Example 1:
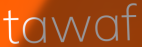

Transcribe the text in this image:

tawaf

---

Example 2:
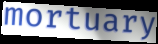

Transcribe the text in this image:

mortuary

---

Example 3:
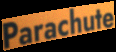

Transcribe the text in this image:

Parachute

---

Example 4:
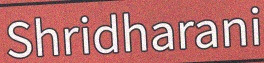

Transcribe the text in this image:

Shridharani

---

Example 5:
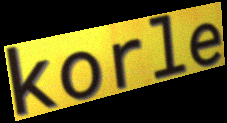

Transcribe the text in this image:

korle